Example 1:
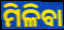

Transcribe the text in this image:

ମିଳିବା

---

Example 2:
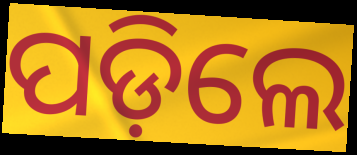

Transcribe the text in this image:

ପଡ଼ିଲେ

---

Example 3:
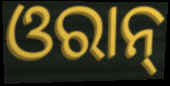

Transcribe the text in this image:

ଓରାନ୍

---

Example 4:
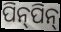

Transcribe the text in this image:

ପିନ୍‍ପିନ୍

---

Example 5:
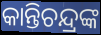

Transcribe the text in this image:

କାନ୍ତିଚନ୍ଦ୍ରଙ୍କ